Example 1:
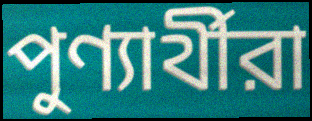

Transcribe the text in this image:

পুণ্যার্থীরা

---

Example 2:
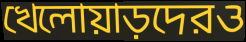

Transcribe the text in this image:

খেলোয়াড়দেরও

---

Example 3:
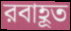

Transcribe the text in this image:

রবাহূত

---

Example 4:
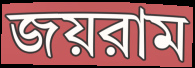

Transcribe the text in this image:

জয়রাম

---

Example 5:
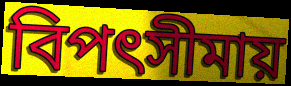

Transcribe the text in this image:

বিপৎসীমায়